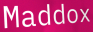
Maddox